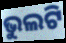
ଭୁଲଟି